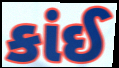
કાંઈ